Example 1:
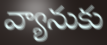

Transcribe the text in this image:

వ్యానుకు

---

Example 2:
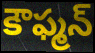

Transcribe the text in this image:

కౌఫ్మన్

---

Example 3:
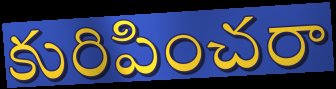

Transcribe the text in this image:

కురిపించరా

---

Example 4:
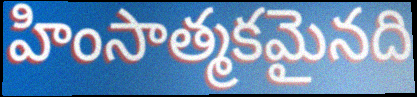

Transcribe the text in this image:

హింసాత్మకమైనది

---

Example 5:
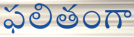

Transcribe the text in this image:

ఫలితంగా